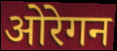
ओरेगन